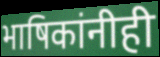
भाषिकांनीही